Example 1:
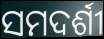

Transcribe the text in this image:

ସମଦର୍ଶୀ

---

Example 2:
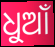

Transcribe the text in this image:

ଧୁଆଁ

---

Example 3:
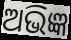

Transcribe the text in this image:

ଅଭିଜ୍ଞ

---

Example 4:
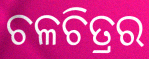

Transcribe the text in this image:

ଚଳଚିତ୍ରର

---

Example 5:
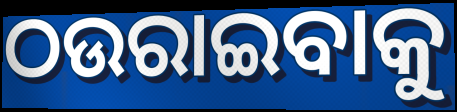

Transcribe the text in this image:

ଠଉରାଇବାକୁ